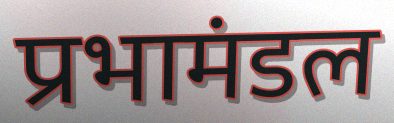
प्रभामंडल